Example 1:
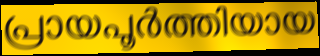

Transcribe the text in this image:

പ്രായപൂർത്തിയായ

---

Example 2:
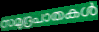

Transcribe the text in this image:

സമുദ്രപാതകൾ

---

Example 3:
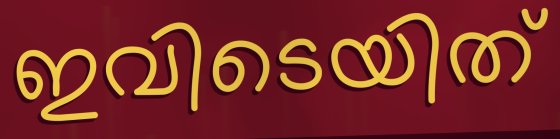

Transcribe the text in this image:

ഇവിടെയിത്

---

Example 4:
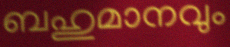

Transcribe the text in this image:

ബഹുമാനവും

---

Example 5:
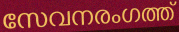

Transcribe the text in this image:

സേവനരംഗത്ത്